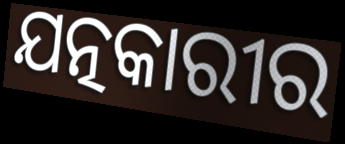
ଯତ୍ନକାରୀର